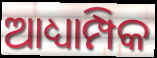
ଆଧ୍ୟାମ୍ପିକ